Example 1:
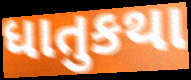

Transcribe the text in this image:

ધાતુકથા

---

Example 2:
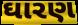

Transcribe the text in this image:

ઘારણ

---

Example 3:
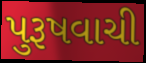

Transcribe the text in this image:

પુરૂષવાચી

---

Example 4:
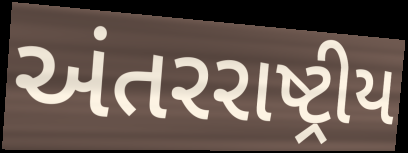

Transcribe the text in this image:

અંતરરાષ્ટ્રીય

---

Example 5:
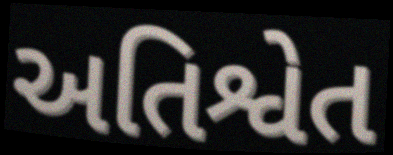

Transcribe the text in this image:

અતિશ્વેત